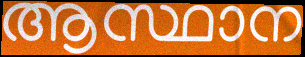
ആസ്ഥാന